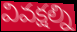
వివక్షల్ని